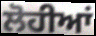
ਲੋਹੀਆਂ